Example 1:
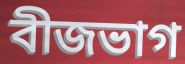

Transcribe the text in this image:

বীজভাগ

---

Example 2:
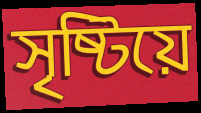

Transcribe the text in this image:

সৃষ্টিয়ে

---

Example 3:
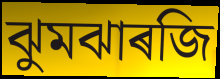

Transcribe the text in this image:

ঝুমঝাৰজি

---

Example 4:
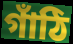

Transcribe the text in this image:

গাঁঠি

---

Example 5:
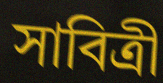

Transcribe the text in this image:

সাবিত্ৰী